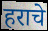
हराचे